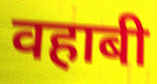
वहाबी